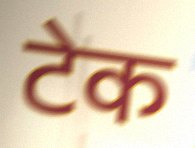
टेक